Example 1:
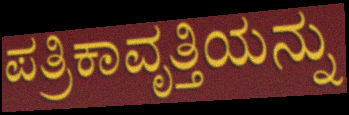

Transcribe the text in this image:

ಪತ್ರಿಕಾವೃತ್ತಿಯನ್ನು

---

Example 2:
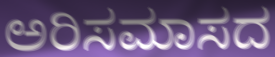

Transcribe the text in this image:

ಅರಿಸಮಾಸದ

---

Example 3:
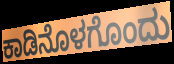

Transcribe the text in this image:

ಕಾಡಿನೊಳಗೊಂದು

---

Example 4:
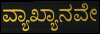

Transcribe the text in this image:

ವ್ಯಾಖ್ಯಾನವೇ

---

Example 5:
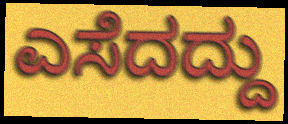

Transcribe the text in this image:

ಎಸೆದದ್ದು